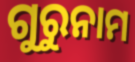
ଗୁରୁନାମ